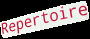
Repertoire